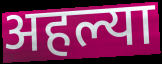
अहल्या